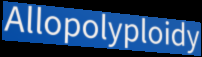
Allopolyploidy